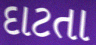
દાટતા